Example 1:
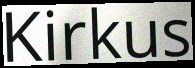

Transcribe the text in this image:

Kirkus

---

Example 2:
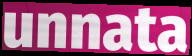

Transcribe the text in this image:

unnata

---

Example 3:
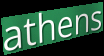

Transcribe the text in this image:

athens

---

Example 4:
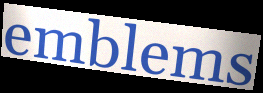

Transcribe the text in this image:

emblems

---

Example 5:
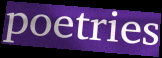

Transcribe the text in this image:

poetries